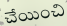
చేయించి